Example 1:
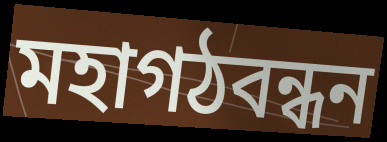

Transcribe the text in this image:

মহাগঠবন্ধন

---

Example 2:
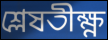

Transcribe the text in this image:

শ্লেষতীক্ষ্ণ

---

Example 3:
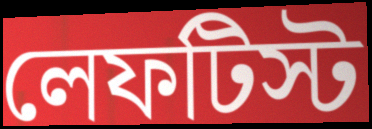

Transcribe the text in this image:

লেফটিস্ট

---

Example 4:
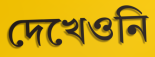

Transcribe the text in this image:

দেখেওনি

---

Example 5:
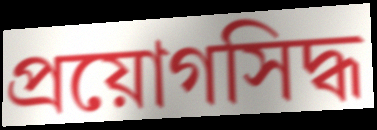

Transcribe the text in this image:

প্রয়োগসিদ্ধ